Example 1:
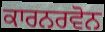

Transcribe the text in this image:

ਕਾਰਨਰਵੋਨ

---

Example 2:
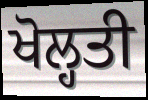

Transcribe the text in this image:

ਖੋਲ੍ਹਤੀ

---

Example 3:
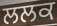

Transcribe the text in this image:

ਲਲਕ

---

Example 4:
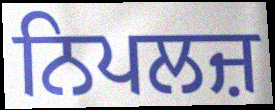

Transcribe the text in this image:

ਨਿਪਲਜ਼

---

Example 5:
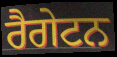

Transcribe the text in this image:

ਰੈਗੇਟਨ